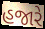
હજારે